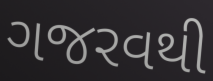
ગજરવથી